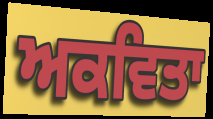
ਅਕਵਿਤਾ